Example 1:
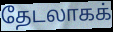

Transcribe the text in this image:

தேடலாகக்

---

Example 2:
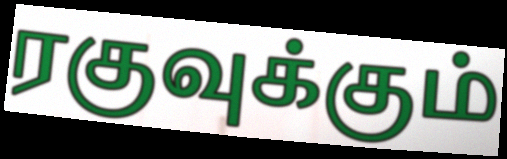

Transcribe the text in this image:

ரகுவுக்கும்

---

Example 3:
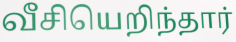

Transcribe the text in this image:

வீசியெறிந்தார்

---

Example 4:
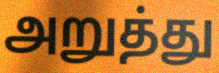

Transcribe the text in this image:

அறுத்து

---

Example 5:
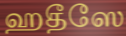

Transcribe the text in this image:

ஹதீஸே